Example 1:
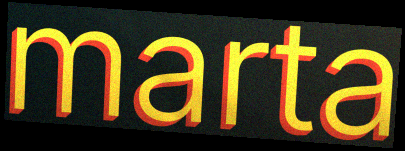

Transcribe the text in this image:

marta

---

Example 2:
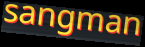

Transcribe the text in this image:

sangman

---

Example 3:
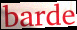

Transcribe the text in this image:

barde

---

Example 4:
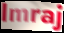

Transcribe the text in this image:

Imraj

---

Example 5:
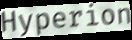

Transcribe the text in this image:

Hyperion